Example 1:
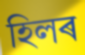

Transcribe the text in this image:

হিলৰ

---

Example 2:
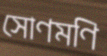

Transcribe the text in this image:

সোণমণি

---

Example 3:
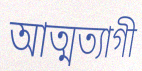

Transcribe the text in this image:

আত্মত্যাগী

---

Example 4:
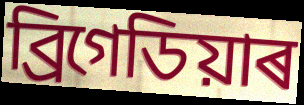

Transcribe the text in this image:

ব্ৰিগেডিয়াৰ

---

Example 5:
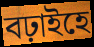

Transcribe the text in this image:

বঢ়াইহে